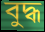
বুদ্ধ